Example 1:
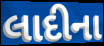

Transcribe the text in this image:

લાદીના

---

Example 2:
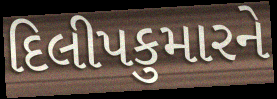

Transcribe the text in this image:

દિલીપકુમારને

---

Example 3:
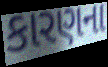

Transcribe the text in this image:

કારણના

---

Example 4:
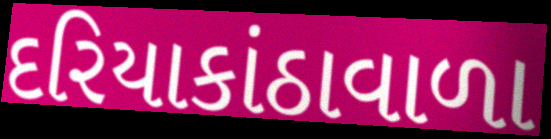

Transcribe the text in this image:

દરિયાકાંઠાવાળા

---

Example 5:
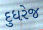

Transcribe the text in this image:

દુધરેજ